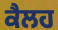
ਕੈਲਹ